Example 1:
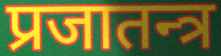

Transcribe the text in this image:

प्रजातन्त्र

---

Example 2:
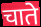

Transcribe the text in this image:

चाते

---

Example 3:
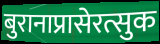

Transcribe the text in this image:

बुरानाप्रासेरत्सुक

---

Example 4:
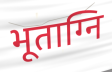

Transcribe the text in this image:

भूताग्नि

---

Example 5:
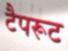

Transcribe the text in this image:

टैपरूट